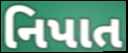
નિપાત